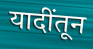
यादींतून